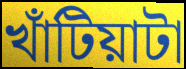
খাঁটিয়াটা